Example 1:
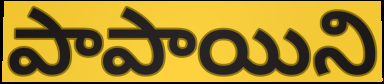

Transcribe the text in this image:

పాపాయిని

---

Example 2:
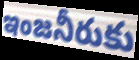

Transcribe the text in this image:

ఇంజనీరుకు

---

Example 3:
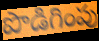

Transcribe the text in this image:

పొడిగింపు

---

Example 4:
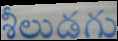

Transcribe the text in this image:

శీలుడగు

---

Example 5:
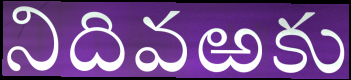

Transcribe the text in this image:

నిదివఱకు